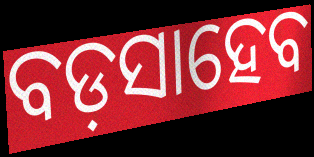
ବଡ଼ସାହେବ